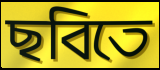
ছবিতে